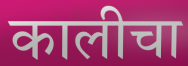
कालीचा